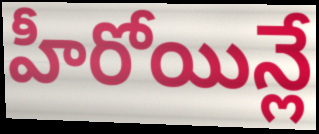
హీరోయిన్లే